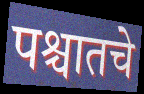
पश्चातचे